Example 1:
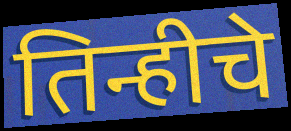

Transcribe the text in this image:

तिन्हीचे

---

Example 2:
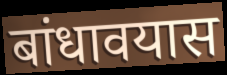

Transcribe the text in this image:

बांधावयास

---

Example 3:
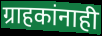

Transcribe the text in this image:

ग्राहकांनाही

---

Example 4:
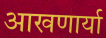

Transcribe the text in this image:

आखणार्या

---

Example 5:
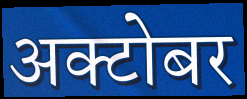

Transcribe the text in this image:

अक्टोबर